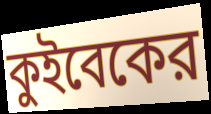
কুইবেকের